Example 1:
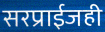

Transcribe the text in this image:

सरप्राईजही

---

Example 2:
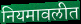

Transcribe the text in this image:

नियमावलीत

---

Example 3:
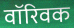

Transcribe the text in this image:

वॉरिवक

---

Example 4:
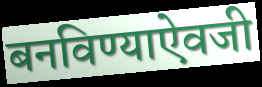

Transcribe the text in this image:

बनविण्याऐवजी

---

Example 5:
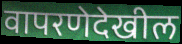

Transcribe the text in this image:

वापरणेदेखील